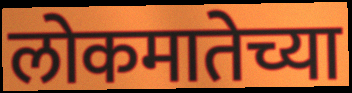
लोकमातेच्या